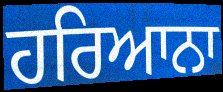
ਹਰਿਆਨਾ